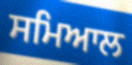
ਸਮਿਆਲ